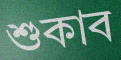
শুকাব